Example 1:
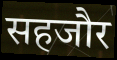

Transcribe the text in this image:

सहजौर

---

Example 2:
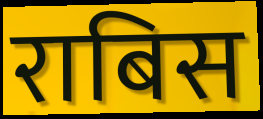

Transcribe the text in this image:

राबिस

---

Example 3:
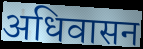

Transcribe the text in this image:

अधिवासन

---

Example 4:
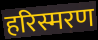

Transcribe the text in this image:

हरिस्मरण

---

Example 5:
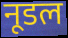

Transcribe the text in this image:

नूडल